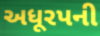
અધૂરપની